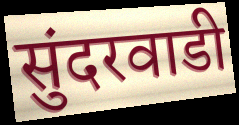
सुंदरवाडी